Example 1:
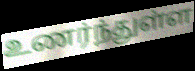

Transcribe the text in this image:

உணர்ந்துள்ள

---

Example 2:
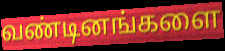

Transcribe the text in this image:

வண்டினங்களை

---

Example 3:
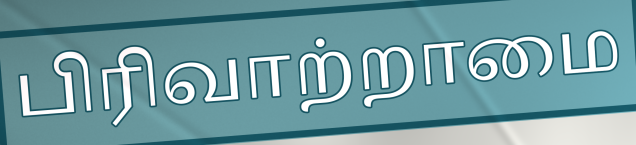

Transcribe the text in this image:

பிரிவாற்றாமை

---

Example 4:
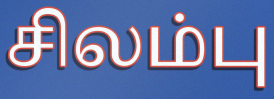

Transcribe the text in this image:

சிலம்பு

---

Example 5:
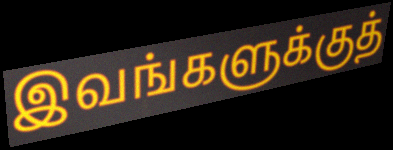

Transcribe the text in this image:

இவங்களுக்குத்